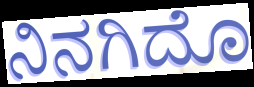
ನಿನಗಿದೊ